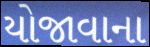
યોજાવાના